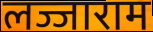
लज्जाराम